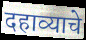
दहाव्याचे